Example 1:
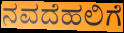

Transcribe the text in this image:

ನವದೆಹಲಿಗೆ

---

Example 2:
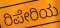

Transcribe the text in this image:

ರಿಪೇರಿಯ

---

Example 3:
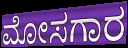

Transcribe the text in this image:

ಮೋಸಗಾರ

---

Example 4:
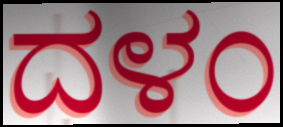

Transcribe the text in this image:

ದಳಂ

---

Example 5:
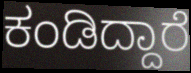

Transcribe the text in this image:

ಕಂಡಿದ್ದಾರೆ